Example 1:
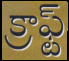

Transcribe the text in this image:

క్రాఫ్ట్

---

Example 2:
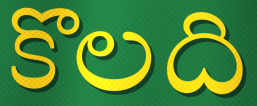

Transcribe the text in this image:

కొలది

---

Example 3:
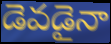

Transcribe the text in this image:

డెవడైనా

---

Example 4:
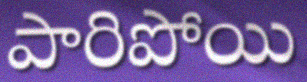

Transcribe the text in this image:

పారిపోయి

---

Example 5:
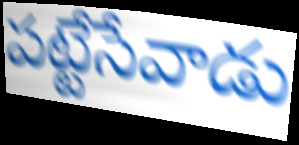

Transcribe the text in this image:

పట్టేసేవాడు